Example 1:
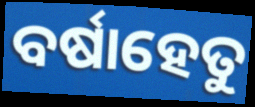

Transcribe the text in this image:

ବର୍ଷାହେତୁ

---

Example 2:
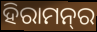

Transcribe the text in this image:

ହିରାମନ୍‍ର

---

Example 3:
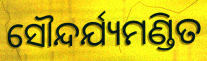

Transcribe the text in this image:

ସୌନ୍ଦର୍ଯ୍ୟମଣ୍ଡିତ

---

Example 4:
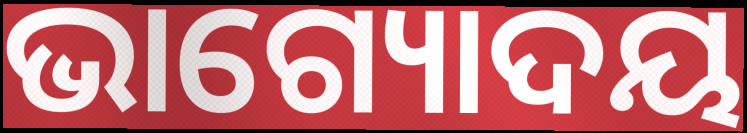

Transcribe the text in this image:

ଭାଗ୍ୟୋଦୟ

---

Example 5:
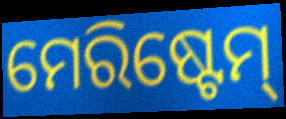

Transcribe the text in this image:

ମେରିଷ୍ଟେମ୍